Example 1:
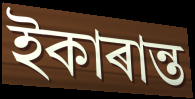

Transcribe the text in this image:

ইকাৰান্ত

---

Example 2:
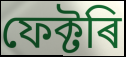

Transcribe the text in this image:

ফেক্টৰি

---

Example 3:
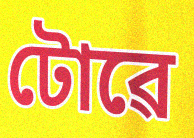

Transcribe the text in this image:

টোৱে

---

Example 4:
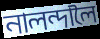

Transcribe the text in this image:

নালন্দালৈ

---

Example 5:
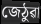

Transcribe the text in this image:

জেঠুৱা